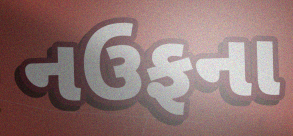
નઉફના